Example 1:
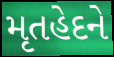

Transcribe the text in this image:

મૃતહેદને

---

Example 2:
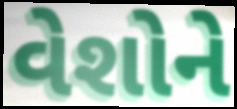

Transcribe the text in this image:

વેશોને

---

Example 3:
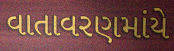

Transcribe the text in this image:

વાતાવરણમાંયે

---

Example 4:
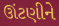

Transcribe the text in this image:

ઊંટણીને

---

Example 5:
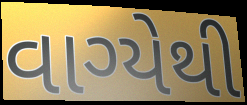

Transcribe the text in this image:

વાગ્યેથી